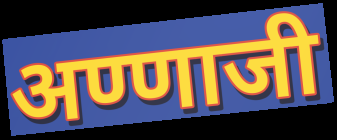
अण्णाजी